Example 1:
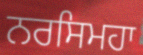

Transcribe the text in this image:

ਨਰਸਿਮਹਾ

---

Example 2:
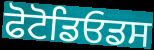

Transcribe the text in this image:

ਫੋਟੋਡਿਓਡਸ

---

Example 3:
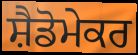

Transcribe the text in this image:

ਸ਼ੈਡੋਮੇਕਰ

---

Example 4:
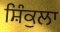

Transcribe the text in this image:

ਸ਼ਿੰਕੁਲਾ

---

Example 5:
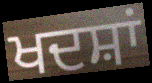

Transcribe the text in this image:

ਖਦਸ਼ਾਂ